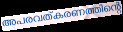
അപരവത്കരണത്തിന്റെ